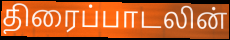
திரைப்பாடலின்